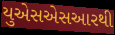
યુએસએસઆરથી